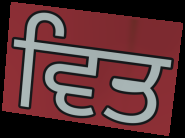
ਵਿਤ